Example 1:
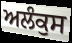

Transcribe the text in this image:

ਅਲੰਕੁਸ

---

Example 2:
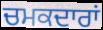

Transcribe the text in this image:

ਚਮਕਦਾਰਾਂ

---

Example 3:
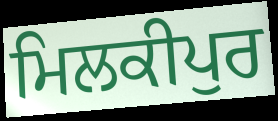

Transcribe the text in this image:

ਮਿਲਕੀਪੁਰ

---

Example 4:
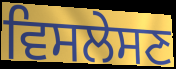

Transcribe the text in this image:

ਵਿਸਲੇਸਣ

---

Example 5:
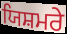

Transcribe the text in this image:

ਯਿਸ਼ਮਰੇ